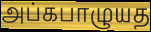
அப்கபாழுயத